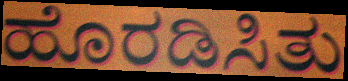
ಹೊರಡಿಸಿತು